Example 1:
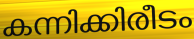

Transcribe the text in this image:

കന്നിക്കിരീടം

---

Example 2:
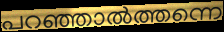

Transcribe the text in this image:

പറഞ്ഞാൽത്തന്നെ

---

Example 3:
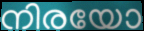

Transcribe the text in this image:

നിരയോ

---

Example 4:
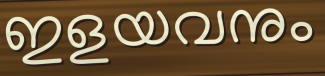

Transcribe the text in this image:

ഇളയവനും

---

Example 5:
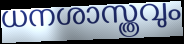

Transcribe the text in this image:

ധനശാസ്ത്രവും